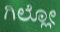
ಗಿಲ್ಲೋ